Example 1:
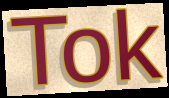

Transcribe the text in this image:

Tok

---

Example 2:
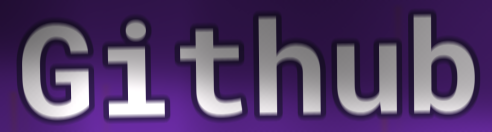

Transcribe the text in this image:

Github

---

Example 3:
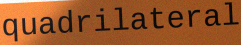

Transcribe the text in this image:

quadrilateral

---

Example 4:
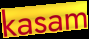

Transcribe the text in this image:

kasam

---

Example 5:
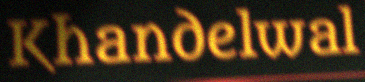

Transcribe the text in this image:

Khandelwal